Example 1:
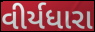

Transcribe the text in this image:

વીર્યધારા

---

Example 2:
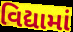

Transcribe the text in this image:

વિદ્યામાં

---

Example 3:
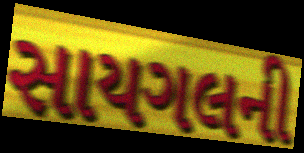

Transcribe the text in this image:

સાયગલની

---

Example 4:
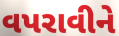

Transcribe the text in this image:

વપરાવીને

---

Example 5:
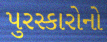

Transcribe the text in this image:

પુરસ્કારોનો